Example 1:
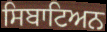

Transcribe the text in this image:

ਸਿਬਾਟਿਅਨ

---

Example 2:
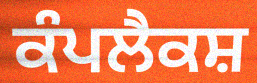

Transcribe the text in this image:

ਕੰਪਲੈਕਸ਼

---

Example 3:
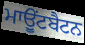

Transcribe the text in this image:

ਮਾਉੂਂਟਬੈਟਨ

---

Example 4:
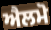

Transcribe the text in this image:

ਐਲਮੋ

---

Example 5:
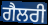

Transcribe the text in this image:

ਗੈਲਰੀ